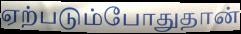
ஏற்படும்போதுதான்